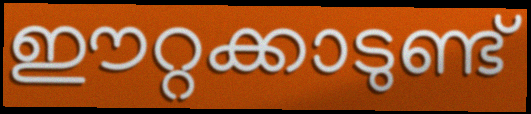
ഈറ്റക്കാടുണ്ട്